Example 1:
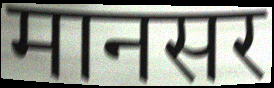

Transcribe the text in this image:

मानसर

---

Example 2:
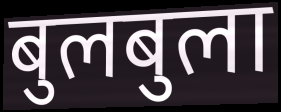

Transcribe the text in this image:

बुलबुला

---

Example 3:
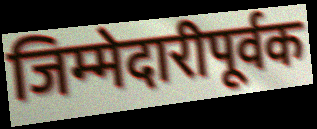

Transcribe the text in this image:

जिम्मेदारीपूर्वक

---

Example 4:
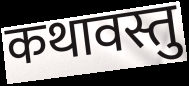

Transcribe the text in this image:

कथावस्तु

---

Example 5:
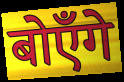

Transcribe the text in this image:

बोएँगे